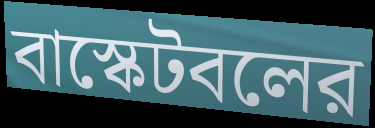
বাস্কেটবলের